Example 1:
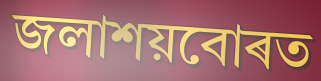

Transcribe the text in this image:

জলাশয়বোৰত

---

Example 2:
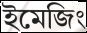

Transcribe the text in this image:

ইমেজিং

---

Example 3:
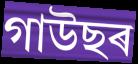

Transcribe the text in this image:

গাউছৰ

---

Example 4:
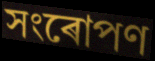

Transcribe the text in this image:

সংৰোপণ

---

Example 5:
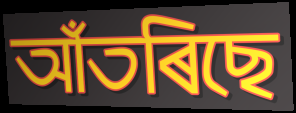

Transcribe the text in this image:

আঁতৰিছে